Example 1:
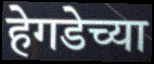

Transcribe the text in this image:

हेगडेच्या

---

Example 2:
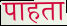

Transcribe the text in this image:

पाहता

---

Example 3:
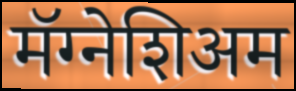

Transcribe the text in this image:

मॅग्नेशिअम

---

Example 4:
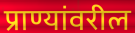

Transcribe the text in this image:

प्राण्यांवरील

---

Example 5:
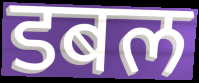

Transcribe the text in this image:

डबल